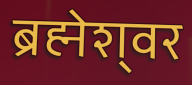
ब्रह्मेश्वर